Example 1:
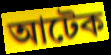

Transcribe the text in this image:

আটেক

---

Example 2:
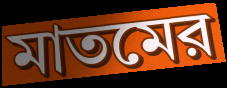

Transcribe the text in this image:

মাতমের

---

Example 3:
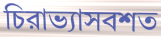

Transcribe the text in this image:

চিরাভ্যাসবশত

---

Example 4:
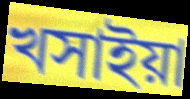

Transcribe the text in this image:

খসাইয়া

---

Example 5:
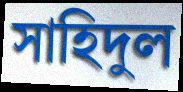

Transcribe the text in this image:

সাহিদুল